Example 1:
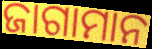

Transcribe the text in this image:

ଜାଗାମାନ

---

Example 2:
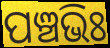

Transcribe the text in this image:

ପଞ୍ଚଭିଃ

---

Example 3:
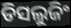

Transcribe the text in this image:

ଡିସଲୁଜିଂ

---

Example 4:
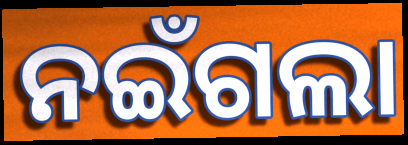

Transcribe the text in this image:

ନଇଁଗଲା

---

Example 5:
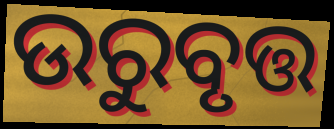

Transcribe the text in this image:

ଉରୁବୃତ୍ତ